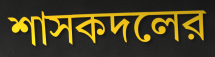
শাসকদলের